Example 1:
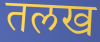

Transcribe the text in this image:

तलख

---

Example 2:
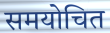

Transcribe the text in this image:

समयोचित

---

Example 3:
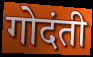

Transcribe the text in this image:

गोदंती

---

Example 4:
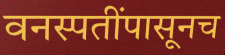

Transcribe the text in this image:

वनस्पतींपासूनच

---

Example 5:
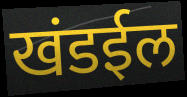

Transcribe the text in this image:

खंडईल